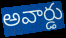
అవార్డు